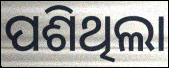
ପଶିଥିଲା